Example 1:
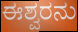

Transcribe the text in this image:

ಈಶ್ವರನು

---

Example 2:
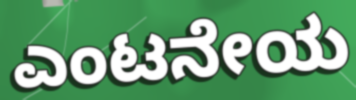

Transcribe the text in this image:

ಎಂಟನೇಯ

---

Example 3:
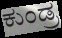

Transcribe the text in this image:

ಕುಂಡ್ರ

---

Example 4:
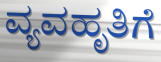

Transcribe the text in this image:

ವ್ಯವಹೃತಿಗೆ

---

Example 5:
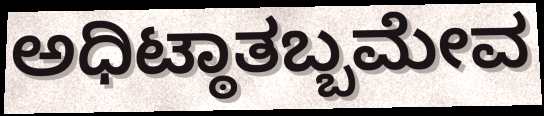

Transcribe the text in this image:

ಅಧಿಟ್ಠಾತಬ್ಬಮೇವ